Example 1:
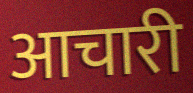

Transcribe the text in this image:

आचारी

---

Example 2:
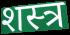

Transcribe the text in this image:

शस्त्र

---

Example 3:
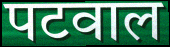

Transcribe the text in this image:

पटवाल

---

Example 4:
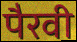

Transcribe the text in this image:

पैरवी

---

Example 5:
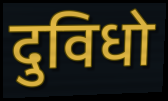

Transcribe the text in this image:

दुविधो